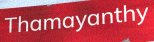
Thamayanthy